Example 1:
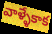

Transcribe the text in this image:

వాళ్ళేకాక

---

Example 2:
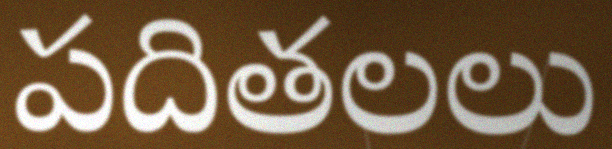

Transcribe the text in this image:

పదితలలు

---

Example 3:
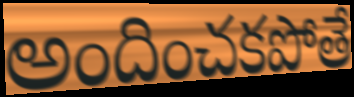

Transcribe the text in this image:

అందించకపోతే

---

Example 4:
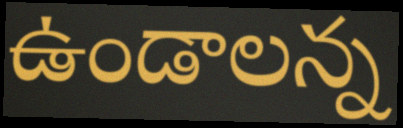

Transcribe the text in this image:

ఉండాలన్న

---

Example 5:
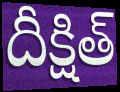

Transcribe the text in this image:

దీక్షిత్